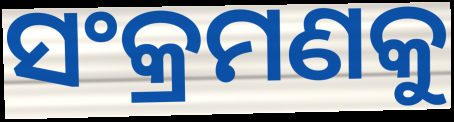
ସଂକ୍ରମଣକୁ